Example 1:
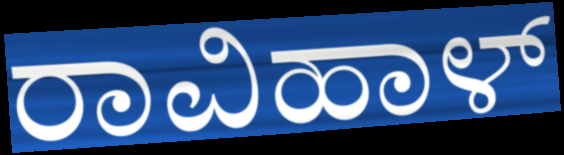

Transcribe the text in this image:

ರಾವಿಹಾಳ್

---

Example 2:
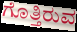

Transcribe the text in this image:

ಗೊತ್ತಿರುವ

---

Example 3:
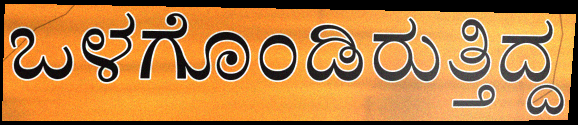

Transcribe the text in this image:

ಒಳಗೊಂಡಿರುತ್ತಿದ್ದ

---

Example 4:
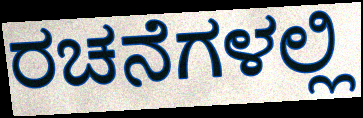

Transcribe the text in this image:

ರಚನೆಗಳಲ್ಲಿ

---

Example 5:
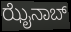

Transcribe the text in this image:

ಝೈನಾಬ್